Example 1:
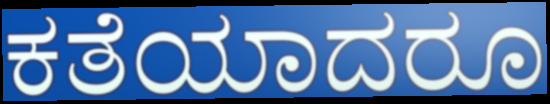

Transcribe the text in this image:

ಕತೆಯಾದರೂ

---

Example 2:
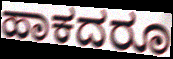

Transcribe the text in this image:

ಹಾಕದರೂ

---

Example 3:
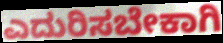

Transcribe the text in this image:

ಎದುರಿಸಬೇಕಾಗಿ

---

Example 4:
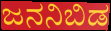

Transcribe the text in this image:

ಜನನಿಬಿಡ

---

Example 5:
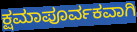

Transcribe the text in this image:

ಕ್ಷಮಾಪೂರ್ವಕವಾಗಿ